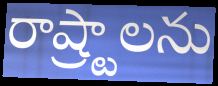
రాష్ర్టాలను